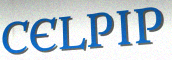
CELPIP